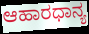
ಆಹಾರಧಾನ್ಯ